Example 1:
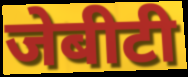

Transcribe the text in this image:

जेबीटी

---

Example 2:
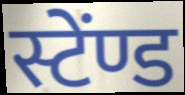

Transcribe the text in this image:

स्टेंण्ड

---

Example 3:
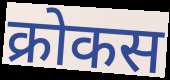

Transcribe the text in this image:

क्रोकस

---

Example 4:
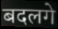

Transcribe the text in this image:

बदलगे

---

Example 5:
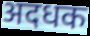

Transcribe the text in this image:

अदधक